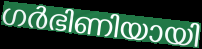
ഗർഭിണിയായി